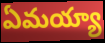
ఏమయ్యా